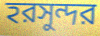
হরসুন্দর